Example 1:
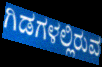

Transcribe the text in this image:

ಗಿಡಗಳಲ್ಲಿರುವ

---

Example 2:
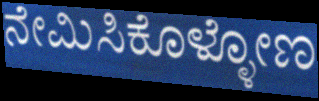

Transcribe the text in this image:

ನೇಮಿಸಿಕೊಳ್ಳೋಣ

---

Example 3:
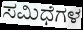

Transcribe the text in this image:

ಸಮಿಧೆಗಳ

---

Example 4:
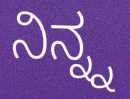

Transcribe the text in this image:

ನಿನ್ನ್ನ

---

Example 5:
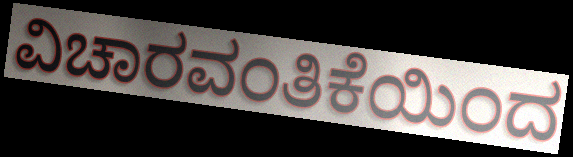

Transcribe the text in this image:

ವಿಚಾರವಂತಿಕೆಯಿಂದ